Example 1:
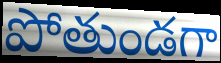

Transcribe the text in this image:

పోతుండగా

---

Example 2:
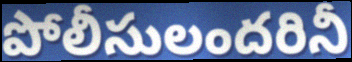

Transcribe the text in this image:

పోలీసులందరినీ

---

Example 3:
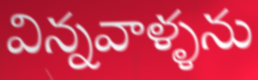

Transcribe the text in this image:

విన్నవాళ్ళను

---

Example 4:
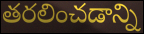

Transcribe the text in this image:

తరలించడాన్ని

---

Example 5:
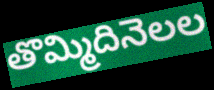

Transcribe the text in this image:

తొమ్మిదినెలల